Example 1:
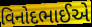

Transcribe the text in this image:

વિનોદભાઈએ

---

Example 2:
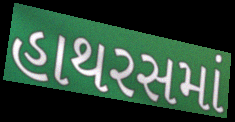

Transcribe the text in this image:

હાથરસમાં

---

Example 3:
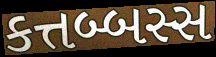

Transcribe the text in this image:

કત્તબ્બસ્સ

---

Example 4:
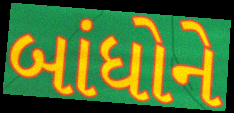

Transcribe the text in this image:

બાંધોને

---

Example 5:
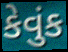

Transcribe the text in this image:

કેવુંક